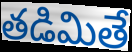
తడిమితే